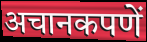
अचानकपणें